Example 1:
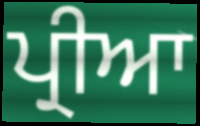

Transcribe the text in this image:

ਪ੍ਰੀਆ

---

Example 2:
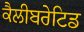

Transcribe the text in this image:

ਕੈਲੀਬਰੇਟਿਡ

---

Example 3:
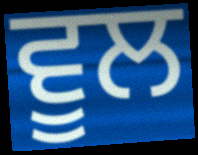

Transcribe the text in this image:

ਵੂਲ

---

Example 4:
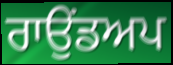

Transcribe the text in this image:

ਰਾਉਂਡਅਪ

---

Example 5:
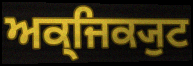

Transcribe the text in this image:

ਅਕ੍ਜਿਕ੍ਯੁਟ